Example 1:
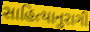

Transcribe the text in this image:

સાહિત્યાનુરાગી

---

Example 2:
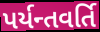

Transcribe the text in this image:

પર્યન્તવર્તિ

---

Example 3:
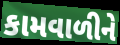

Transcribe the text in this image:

કામવાળીને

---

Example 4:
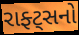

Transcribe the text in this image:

રાફ્ટ્સનો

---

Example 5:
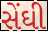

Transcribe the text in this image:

સેંઘી